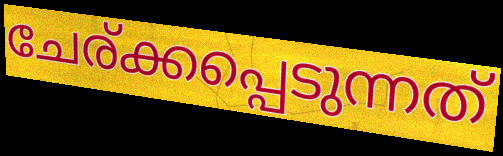
ചേര്ക്കപ്പെടുന്നത്